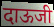
दाऊजी